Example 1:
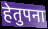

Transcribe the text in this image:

हेतुपना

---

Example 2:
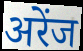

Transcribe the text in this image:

अरेंज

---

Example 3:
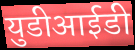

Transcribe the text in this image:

युडीआईडी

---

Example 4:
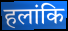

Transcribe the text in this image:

हलांकि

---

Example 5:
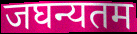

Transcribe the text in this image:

जघन्यतम